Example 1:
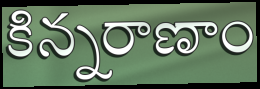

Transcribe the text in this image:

కిన్నరాణాం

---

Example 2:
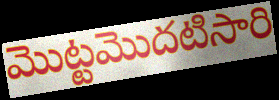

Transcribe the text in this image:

మొట్టమొదటిసారి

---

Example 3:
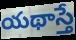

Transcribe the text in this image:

యథాస్తే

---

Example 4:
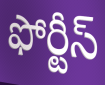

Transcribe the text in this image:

ఫోర్టీస్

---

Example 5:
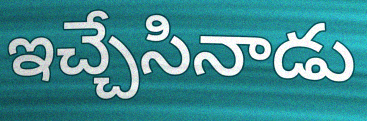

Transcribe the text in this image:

ఇచ్చేసినాడు